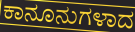
ಕಾನೂನುಗಳಾದ